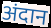
अंदान